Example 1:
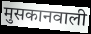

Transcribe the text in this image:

मुसकानवाली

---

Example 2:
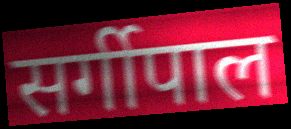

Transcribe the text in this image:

सर्गीपाल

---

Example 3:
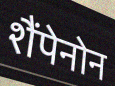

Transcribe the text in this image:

शैंपेनोन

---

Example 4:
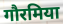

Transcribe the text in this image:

गौरमिया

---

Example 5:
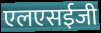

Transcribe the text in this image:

एलएसईजी